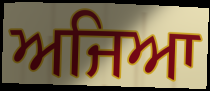
ਅਜਿਆ